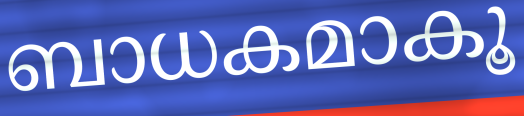
ബാധകമാകൂ